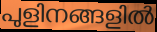
പുളിനങ്ങളിൽ